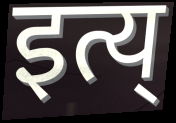
इत्य्